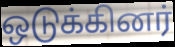
ஒடுக்கினர்